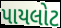
પાયલોટ